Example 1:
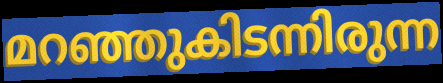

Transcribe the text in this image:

മറഞ്ഞുകിടന്നിരുന്ന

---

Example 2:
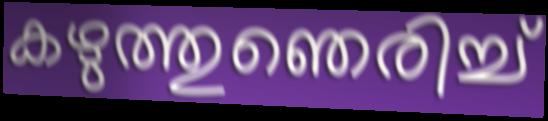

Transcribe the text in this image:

കഴുത്തുഞെരിച്ച്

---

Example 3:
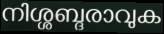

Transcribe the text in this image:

നിശ്ശബ്ദരാവുക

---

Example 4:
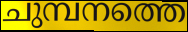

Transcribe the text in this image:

ചുമ്പനത്തെ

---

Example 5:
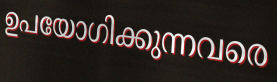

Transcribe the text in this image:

ഉപയോഗിക്കുന്നവരെ